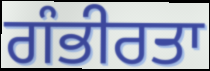
ਗੰਭੀਰਤਾ